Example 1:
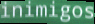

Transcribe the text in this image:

inimigos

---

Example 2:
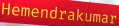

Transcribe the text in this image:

Hemendrakumar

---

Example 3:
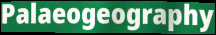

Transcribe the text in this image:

Palaeogeography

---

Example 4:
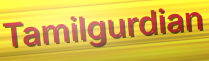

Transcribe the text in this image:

Tamilgurdian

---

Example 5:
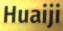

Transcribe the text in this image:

Huaiji